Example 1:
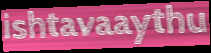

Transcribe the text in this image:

ishtavaaythu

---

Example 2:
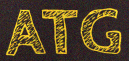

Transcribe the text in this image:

ATG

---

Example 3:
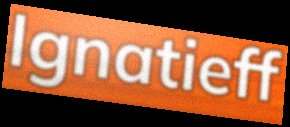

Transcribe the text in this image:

Ignatieff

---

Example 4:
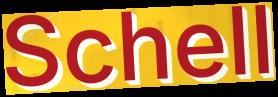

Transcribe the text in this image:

Schell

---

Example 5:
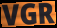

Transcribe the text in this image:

VGR